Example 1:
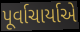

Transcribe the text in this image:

પૂર્વાચાર્યાએ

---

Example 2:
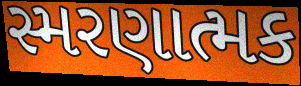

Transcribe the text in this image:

સ્મરણાત્મક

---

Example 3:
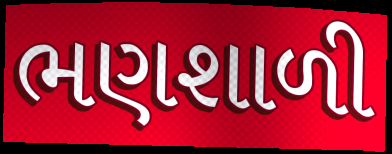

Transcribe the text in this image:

ભણશાળી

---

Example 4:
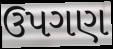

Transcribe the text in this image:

ઉપગણ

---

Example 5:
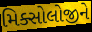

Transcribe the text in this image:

મિક્સોલોજીને